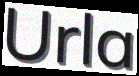
Urla